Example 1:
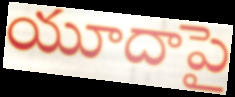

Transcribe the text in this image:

యూదాపై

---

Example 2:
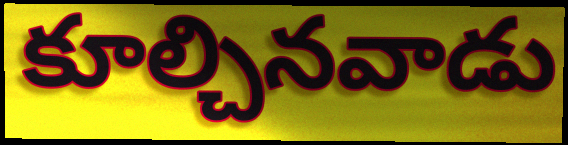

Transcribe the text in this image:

కూల్చినవాడు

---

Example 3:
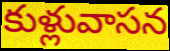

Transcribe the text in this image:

కుళ్లువాసన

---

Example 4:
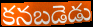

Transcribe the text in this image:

కనబడెడు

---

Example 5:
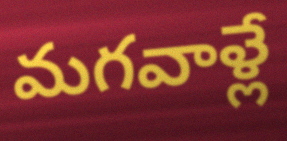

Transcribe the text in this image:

మగవాళ్లే